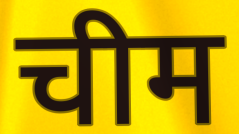
चीम